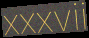
xxxvii